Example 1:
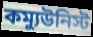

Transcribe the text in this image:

কম্যুউনিস্ট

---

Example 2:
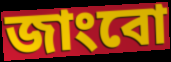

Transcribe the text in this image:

জাংবো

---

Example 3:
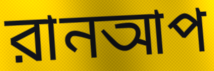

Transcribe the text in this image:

রানআপ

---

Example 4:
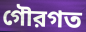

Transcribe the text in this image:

গৌরগত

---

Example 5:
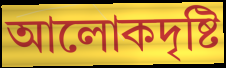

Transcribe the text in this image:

আলোকদৃষ্টি